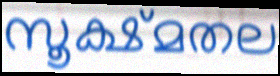
സൂക്ഷ്മതല